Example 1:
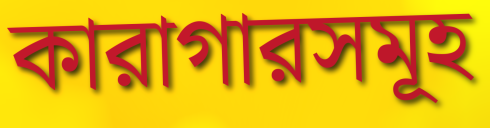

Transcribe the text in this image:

কারাগারসমূহ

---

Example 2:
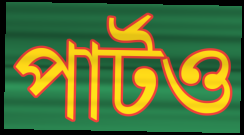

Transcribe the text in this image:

পার্টও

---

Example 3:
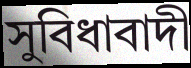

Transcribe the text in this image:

সুবিধাবাদী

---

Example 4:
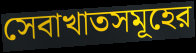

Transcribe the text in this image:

সেবাখাতসমূহের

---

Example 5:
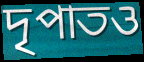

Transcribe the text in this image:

দৃপাতও